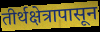
तीर्थक्षेत्रापासून